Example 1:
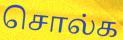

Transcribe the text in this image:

சொல்க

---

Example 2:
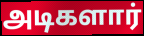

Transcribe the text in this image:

அடிகளார்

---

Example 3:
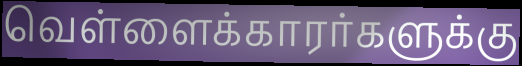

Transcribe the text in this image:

வெள்ளைக்காரர்களுக்கு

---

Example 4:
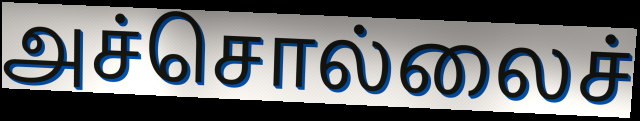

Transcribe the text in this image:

அச்சொல்லைச்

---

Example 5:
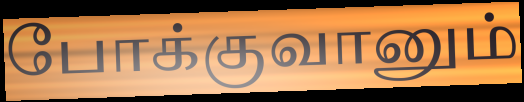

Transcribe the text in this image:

போக்குவானும்